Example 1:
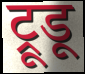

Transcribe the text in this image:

ट्रूडू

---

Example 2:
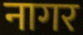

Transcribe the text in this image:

नागर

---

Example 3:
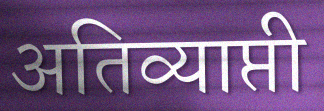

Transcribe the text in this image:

अतिव्याप्ती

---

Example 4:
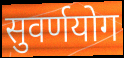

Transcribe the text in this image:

सुवर्णयोग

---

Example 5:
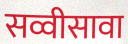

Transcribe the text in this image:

सव्वीसावा